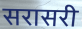
सरासरी